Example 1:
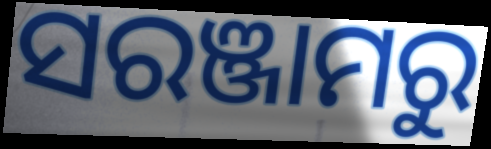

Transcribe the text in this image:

ସରଞ୍ଜାମରୁ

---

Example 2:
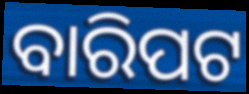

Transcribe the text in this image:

ବାରିପଟ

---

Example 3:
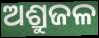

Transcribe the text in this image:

ଅଶ୍ରୁଜଳ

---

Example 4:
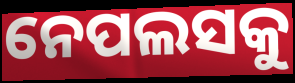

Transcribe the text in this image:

ନେପଲସକୁ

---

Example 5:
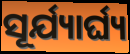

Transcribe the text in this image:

ସୂର୍ଯ୍ୟାର୍ଘ୍ୟ